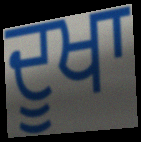
ਦੂਖਾ